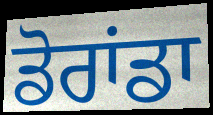
ਡੋਰਾਂਡਾ